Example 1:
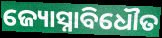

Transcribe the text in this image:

ଜ୍ୟୋସ୍ନାବିଧୌତ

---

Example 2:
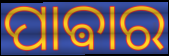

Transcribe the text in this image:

ପାଵାର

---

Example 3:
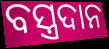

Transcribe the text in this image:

ବସ୍ତ୍ରଦାନ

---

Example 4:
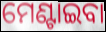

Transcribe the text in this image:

ମେଣ୍ଟାଇବା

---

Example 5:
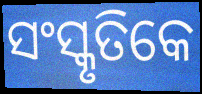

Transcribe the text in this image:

ସଂସ୍କୃତିକେ